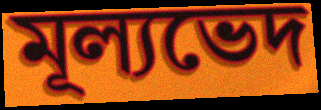
মূল্যভেদ